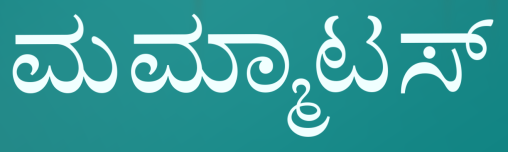
ಮಮ್ಮಾಟಸ್